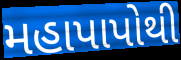
મહાપાપોથી